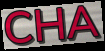
CHA